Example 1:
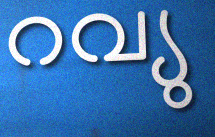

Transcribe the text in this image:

റവ്യു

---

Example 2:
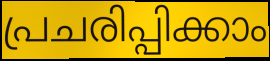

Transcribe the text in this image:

പ്രചരിപ്പിക്കാം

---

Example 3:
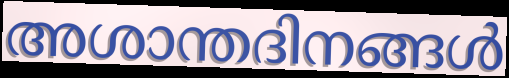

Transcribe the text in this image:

അശാന്തദിനങ്ങൾ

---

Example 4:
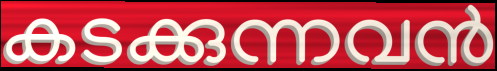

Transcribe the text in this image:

കടക്കുന്നവൻ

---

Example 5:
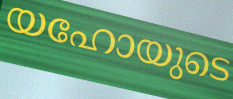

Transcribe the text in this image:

യഹോയുടെ